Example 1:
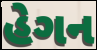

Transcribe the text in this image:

હેગન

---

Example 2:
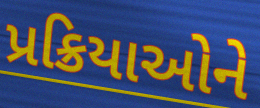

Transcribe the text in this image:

પ્રક્રિયાઓને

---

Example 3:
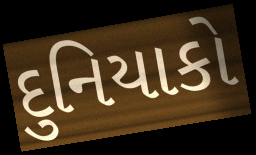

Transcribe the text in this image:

દુનિયાકો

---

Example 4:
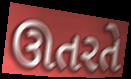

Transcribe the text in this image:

ઊતરતે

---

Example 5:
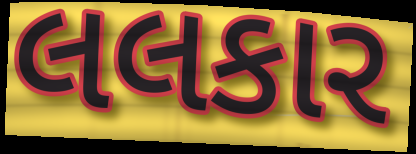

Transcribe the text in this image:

લલકાર